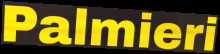
Palmieri